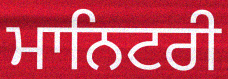
ਮਾਨਿਟਰੀ